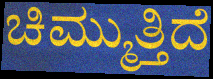
ಚಿಮ್ಮುತ್ತಿದೆ